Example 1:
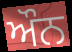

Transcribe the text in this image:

ਔਨ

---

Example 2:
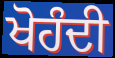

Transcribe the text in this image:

ਖੋਹੰਦੀ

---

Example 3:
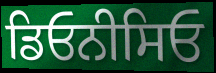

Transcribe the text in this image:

ਡਿਓਨੀਸਿਓ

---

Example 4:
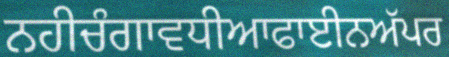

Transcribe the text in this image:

ਨਹੀਚੰਗਾਵਧੀਆਫਾਈਨਅੱਪਰ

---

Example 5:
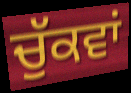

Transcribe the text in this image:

ਚੁੱਕਵਾਂ